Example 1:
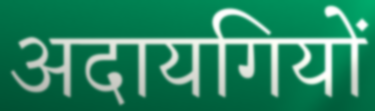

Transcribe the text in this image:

अदायगियों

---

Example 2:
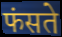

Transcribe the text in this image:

फंसते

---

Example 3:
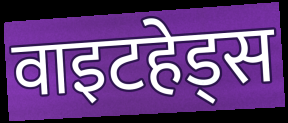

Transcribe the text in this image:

वाइटहेड्स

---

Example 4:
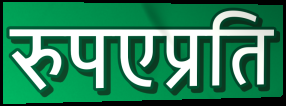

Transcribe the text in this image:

रुपएप्रति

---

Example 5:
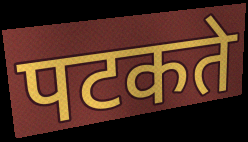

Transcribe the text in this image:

पटकते